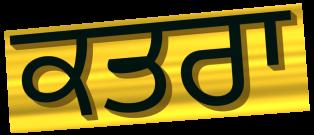
ਕਤਰਾ